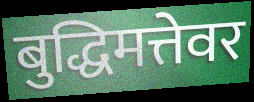
बुद्धिमत्तेवर